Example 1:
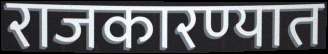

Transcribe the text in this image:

राजकारण्यात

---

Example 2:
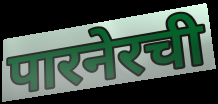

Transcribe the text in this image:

पारनेरची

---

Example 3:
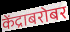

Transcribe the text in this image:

केंद्राबरोबर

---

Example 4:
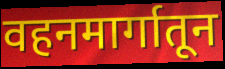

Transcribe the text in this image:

वहनमार्गातून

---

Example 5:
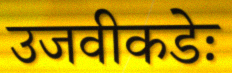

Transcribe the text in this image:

उजवीकडेः